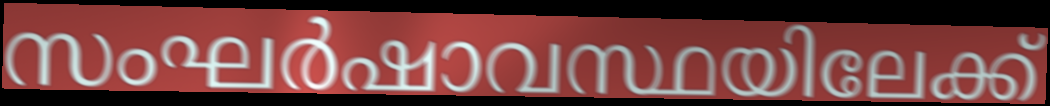
സംഘർഷാവസ്ഥയിലേക്ക്